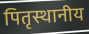
पितृस्थानीय